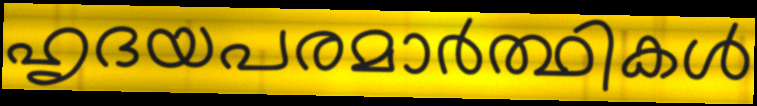
ഹൃദയപരമാർത്ഥികൾ